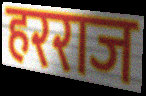
हरराज